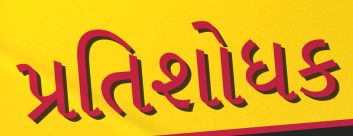
પ્રતિશોધક